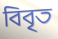
বিবৃত